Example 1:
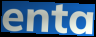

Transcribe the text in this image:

enta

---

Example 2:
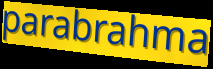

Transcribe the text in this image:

parabrahma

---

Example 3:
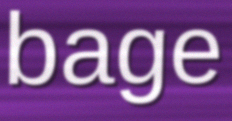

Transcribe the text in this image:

bage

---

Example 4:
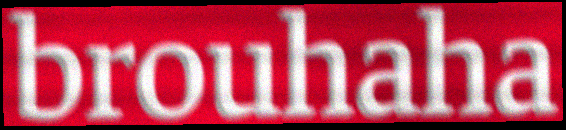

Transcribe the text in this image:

brouhaha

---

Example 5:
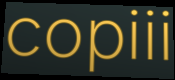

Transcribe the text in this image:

copiii